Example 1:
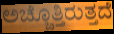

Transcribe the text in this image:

ಅಚ್ಚೊತ್ತಿರುತ್ತದೆ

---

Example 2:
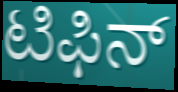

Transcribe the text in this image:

ಟಿಫಿನ್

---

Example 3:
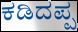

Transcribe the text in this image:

ಕಡಿದಪ್ಪ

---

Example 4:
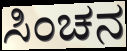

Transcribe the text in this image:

ಸಿಂಚನ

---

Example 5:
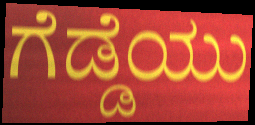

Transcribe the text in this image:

ಗೆಡ್ಡೆಯು